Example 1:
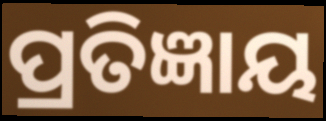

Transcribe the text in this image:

ପ୍ରତିଜ୍ଞାୟ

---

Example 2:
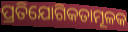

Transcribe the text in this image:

ପ୍ରତିଯୋଗିକତାମୂଳକ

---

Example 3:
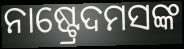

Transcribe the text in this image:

ନାଷ୍ଟ୍ରେଦମସଙ୍କ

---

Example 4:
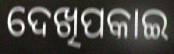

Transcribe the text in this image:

ଦେଖିପକାଇ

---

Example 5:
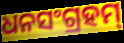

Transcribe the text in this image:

ଧନସଂଗ୍ରହମ୍